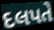
દલપતે